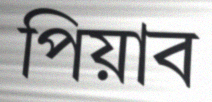
পিয়াব